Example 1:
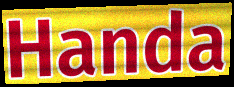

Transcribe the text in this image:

Handa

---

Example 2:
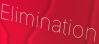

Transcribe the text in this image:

Elimination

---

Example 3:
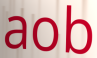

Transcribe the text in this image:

aob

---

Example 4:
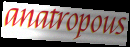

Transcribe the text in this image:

anatropous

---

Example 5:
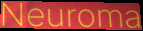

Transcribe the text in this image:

Neuroma